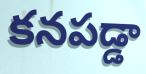
కనపడ్డా